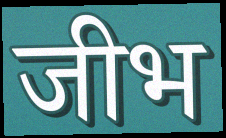
जीभ